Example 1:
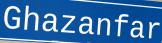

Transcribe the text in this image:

Ghazanfar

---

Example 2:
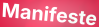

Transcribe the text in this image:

Manifeste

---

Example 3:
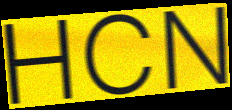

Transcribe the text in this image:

HCN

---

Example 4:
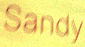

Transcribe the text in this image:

Sandy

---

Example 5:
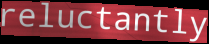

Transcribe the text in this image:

reluctantly